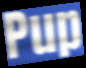
Pup